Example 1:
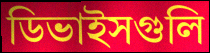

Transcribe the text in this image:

ডিভাইসগুলি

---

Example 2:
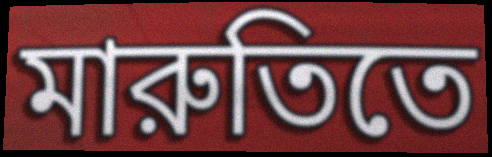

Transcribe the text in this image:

মারুতিতে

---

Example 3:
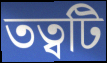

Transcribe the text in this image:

তত্বটি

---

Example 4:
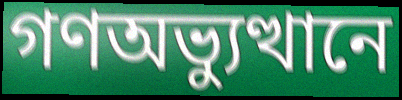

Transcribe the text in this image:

গণঅভ্যুত্থানে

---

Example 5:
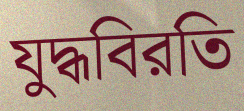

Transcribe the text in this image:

যুদ্ধবিরতি